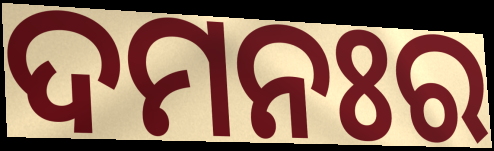
ଦମନଃର